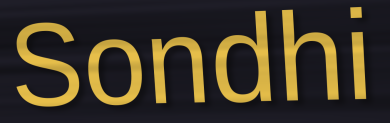
Sondhi